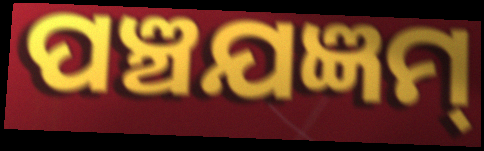
ପଞ୍ଚଯଜ୍ଞମ୍